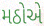
મઠોએ